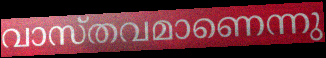
വാസ്തവമാണെന്നു